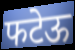
फटेऊ